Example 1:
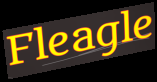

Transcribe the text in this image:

Fleagle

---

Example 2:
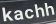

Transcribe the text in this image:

kachh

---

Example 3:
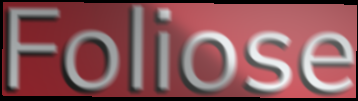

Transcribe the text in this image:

Foliose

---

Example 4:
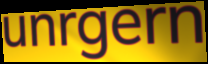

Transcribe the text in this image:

unrgern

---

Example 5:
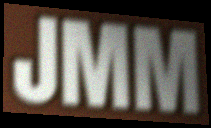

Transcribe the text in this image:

JMM